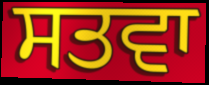
ਸਤਵਾ